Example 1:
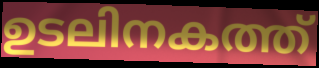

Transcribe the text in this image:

ഉടലിനകത്ത്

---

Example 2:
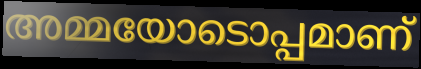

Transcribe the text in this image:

അമ്മയോടൊപ്പമാണ്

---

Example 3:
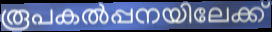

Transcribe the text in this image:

രൂപകൽപ്പനയിലേക്ക്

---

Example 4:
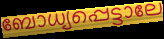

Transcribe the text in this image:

ബോധ്യപ്പെട്ടാലേ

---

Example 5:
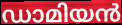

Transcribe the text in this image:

ഡാമിയൻ